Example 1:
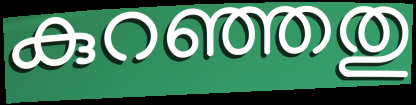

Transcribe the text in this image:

കുറഞ്ഞതു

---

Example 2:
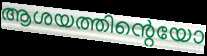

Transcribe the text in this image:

ആശയത്തിന്റെയോ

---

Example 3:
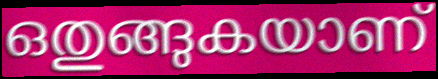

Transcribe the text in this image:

ഒതുങ്ങുകയാണ്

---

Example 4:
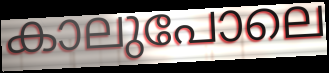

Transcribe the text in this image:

കാലുപോലെ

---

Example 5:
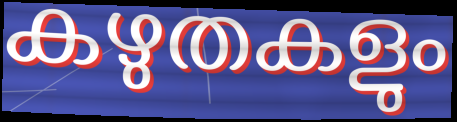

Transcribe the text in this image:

കഴുതകളും